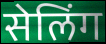
सेलिंग